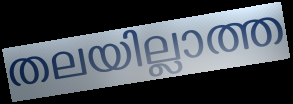
തലയില്ലാത്ത